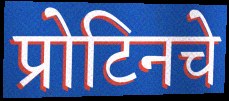
प्रोटिनचे